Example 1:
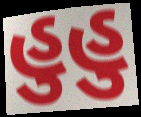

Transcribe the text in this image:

હુહુ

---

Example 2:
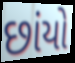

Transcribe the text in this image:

છાંયો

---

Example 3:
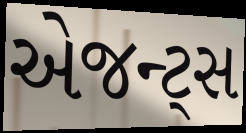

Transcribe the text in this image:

એજન્ટ્સ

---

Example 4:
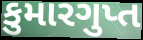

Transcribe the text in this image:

કુમારગુપ્ત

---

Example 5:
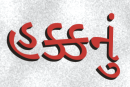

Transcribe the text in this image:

હક્કનું